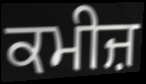
ਕਮੀਜ਼